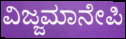
ವಿಜ್ಜಮಾನೇಪಿ